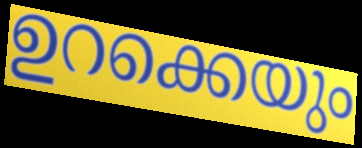
ഉറക്കെയും